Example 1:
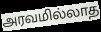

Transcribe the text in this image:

அரவமில்லாத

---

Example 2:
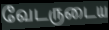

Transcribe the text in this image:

வேடருடைய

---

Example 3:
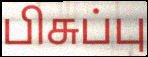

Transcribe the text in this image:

பிசுப்பு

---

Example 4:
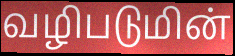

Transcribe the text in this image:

வழிபடுமின்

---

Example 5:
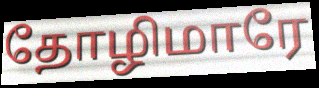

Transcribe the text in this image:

தோழிமாரே